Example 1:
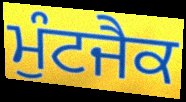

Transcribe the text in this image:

ਮੁੰਟਜੈਕ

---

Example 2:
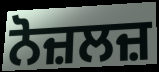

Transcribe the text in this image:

ਨੋਜ਼ਲਜ਼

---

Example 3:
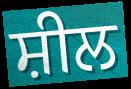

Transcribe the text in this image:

ਸ਼ੀਲ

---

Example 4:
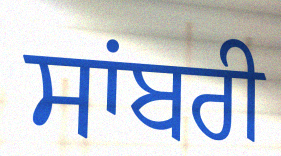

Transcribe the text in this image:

ਸਾਂਬਰੀ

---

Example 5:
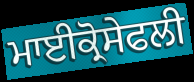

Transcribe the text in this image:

ਮਾਈਕ੍ਰੋਸੇਫਲੀ